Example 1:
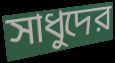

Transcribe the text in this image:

সাধুদের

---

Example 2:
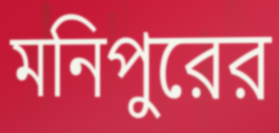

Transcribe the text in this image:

মনিপুরের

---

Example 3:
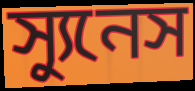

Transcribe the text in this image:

স্যুনেস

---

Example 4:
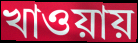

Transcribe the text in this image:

খাওয়ায়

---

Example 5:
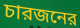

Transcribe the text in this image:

চারজনের